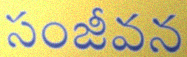
సంజీవన